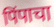
पिंपाचा